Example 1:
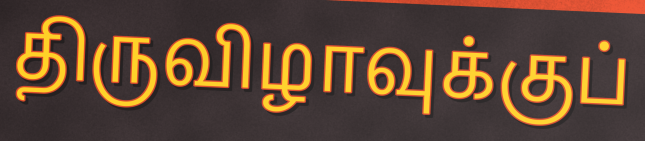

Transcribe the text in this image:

திருவிழாவுக்குப்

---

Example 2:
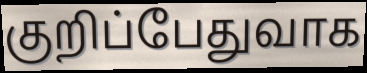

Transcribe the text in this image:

குறிப்பேதுவாக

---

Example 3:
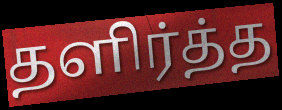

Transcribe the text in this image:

தளிர்த்த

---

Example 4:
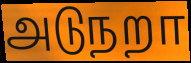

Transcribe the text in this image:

அடுநறா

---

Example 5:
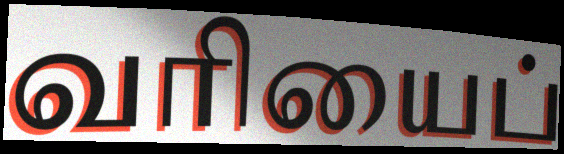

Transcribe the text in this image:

வரியைப்